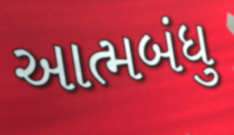
આત્મબંધુ